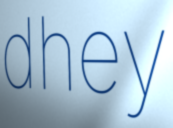
dhey